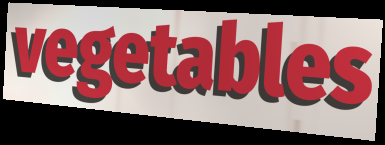
vegetables